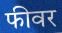
फीवर